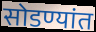
सोडण्यांत